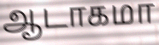
ஆடாகமா